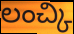
లంచ్కి